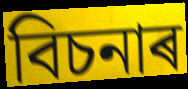
বিচনাৰ